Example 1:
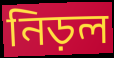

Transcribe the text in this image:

নিড়ল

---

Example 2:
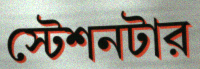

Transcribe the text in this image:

স্টেশনটার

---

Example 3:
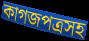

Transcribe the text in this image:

কাগজপত্রসহ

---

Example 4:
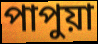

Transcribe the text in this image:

পাপুয়া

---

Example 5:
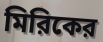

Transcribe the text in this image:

মিরিকের